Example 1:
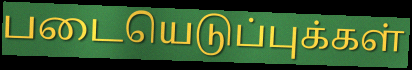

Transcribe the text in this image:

படையெடுப்புக்கள்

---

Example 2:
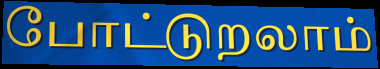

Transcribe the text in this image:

போட்டுறலாம்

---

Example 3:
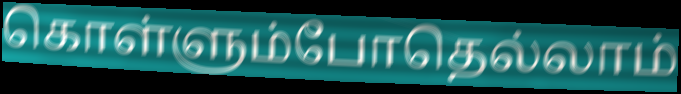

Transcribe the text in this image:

கொள்ளும்போதெல்லாம்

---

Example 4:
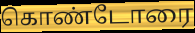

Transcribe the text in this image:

கொண்டோரை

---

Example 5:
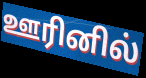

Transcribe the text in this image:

ஊரினில்